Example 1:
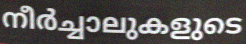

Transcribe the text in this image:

നീർച്ചാലുകളുടെ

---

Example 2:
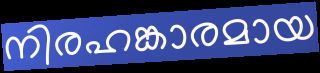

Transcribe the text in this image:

നിരഹങ്കാരമായ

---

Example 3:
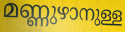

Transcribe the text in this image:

മണ്ണുഴാനുള്ള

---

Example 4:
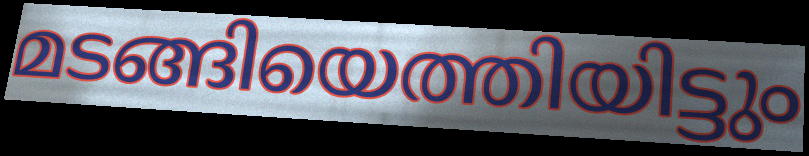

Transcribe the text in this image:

മടങ്ങിയെത്തിയിട്ടും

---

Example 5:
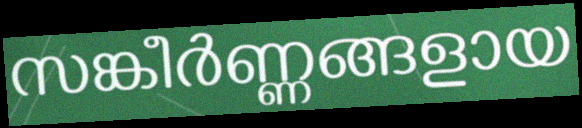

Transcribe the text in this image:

സങ്കീർണ്ണങ്ങളായ